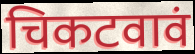
चिकटवावं